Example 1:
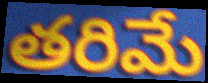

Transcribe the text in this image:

తరిమే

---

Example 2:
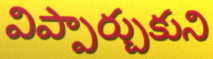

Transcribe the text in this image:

విప్పార్చుకుని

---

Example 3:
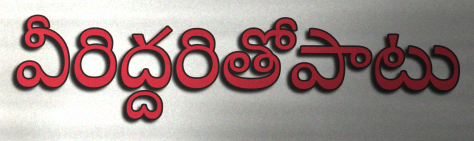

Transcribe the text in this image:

వీరిద్దరితోపాటు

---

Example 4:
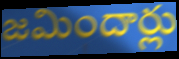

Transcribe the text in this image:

జమిందార్లు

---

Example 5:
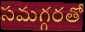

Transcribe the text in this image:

సమగ్గరతో